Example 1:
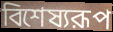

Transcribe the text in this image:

বিশেষ্যরূপ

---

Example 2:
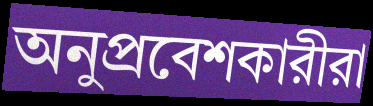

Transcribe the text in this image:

অনুপ্রবেশকারীরা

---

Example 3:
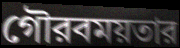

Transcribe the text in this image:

গৌরবময়তার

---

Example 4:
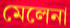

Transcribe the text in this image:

মেলেনা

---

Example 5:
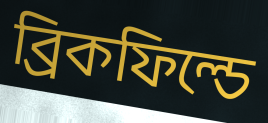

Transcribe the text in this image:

ব্রিকফিল্ডে